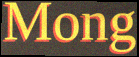
Mong